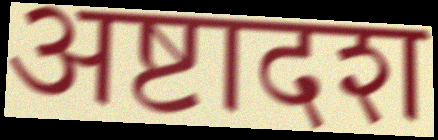
अष्टादश